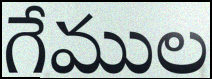
గేముల